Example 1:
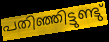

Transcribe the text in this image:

പതിഞ്ഞിട്ടുണ്ടു്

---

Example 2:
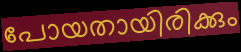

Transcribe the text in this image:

പോയതായിരിക്കും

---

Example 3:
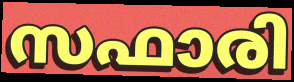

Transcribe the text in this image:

സഫാരി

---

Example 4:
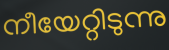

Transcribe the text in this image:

നീയേറ്റിടുന്നു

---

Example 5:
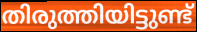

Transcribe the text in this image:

തിരുത്തിയിട്ടുണ്ട്